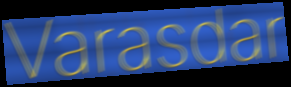
Varasdar